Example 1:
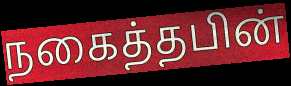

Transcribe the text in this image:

நகைத்தபின்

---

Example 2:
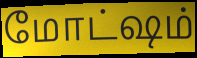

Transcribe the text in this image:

மோட்ஷம்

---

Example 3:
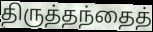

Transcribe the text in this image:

திருத்தந்தைத்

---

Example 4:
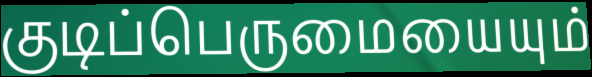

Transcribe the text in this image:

குடிப்பெருமையையும்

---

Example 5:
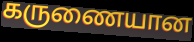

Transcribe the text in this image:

கருணையான